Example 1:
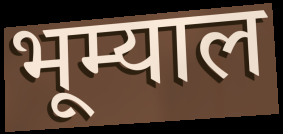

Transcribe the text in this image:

भूम्याल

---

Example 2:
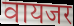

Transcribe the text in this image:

वायजर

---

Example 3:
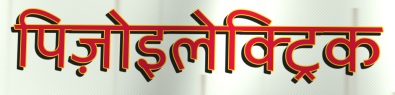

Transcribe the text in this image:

पिज़ोइलेक्ट्रिक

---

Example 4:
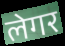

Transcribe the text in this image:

लेगर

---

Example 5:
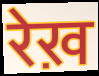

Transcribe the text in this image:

रेख़